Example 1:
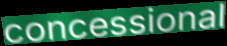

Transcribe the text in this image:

concessional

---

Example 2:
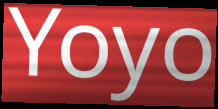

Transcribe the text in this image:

Yoyo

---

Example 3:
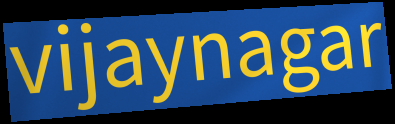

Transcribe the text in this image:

vijaynagar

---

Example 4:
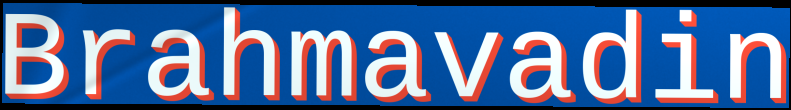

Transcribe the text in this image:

Brahmavadin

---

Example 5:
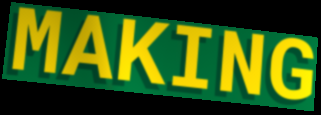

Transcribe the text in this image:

MAKING